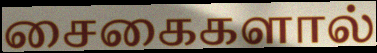
சைகைகளால்